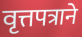
वृत्तपत्राने